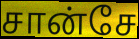
சான்சே